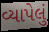
વ્યાપેલું